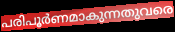
പരിപൂർണമാകുന്നതുവരെ